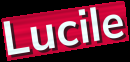
Lucile